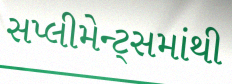
સપ્લીમેન્ટ્સમાંથી